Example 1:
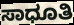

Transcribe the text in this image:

ಸಾಧೂತಿ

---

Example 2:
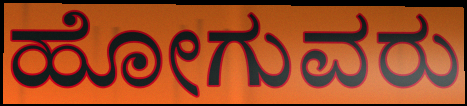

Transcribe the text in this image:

ಹೋಗುವರು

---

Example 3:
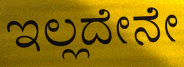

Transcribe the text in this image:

ಇಲ್ಲದೇನೇ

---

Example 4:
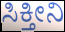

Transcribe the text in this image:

ಸಿಕ್ತೀನಿ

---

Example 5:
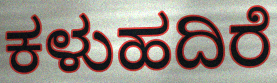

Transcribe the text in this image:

ಕಳುಹದಿರೆ